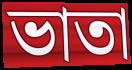
ভাতা